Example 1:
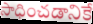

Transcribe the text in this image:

సాధించడానికే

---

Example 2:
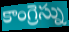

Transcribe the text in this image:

కాంగ్రెస్ను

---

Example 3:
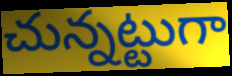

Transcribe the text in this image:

చున్నట్టుగా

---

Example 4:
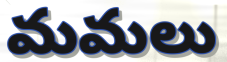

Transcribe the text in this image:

మమలు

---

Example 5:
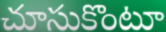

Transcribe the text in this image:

చూసుకొంటూ